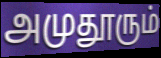
அமுதூரும்